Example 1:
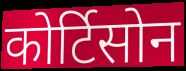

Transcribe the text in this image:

कोर्टिसोन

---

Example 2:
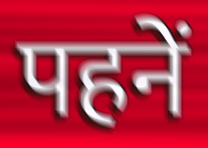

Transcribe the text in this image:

पहनें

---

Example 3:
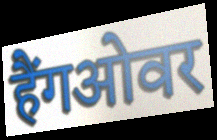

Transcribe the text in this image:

हैंगओवर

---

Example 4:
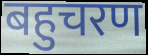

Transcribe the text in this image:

बहुचरण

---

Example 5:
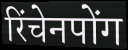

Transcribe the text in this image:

रिंचेनपोंग